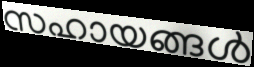
സഹായങ്ങൾ